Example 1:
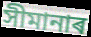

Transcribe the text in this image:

সীমানাৰ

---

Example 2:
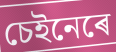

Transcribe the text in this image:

চেইনেৰে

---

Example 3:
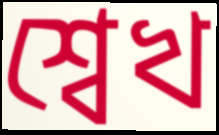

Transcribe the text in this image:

শ্বেখ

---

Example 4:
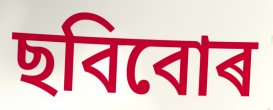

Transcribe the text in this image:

ছবিবোৰ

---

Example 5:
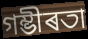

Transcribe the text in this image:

গম্ভীৰতা